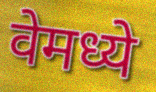
वेमध्ये